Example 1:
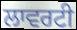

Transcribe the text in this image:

ਲਾਵਰਟੀ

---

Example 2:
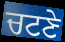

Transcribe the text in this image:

ਚਟਣੇ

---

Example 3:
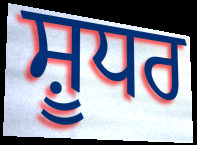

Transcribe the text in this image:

ਸ਼ੂਧਰ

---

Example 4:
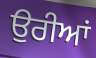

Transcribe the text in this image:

ਉਰੀਆਂ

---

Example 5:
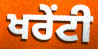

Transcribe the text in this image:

ਖਰੇਂਟੀ